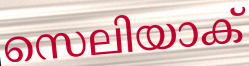
സെലിയാക്